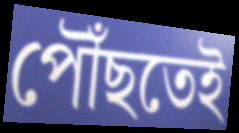
পৌঁছতেই